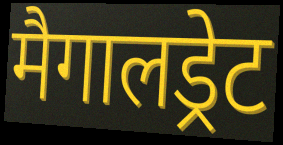
मैगालड्रेट